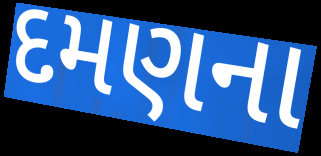
દમણના